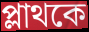
প্লাথকে